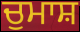
ਚੁਮਾਸ਼